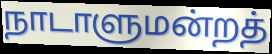
நாடாளுமன்றத்